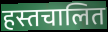
हस्तचालित